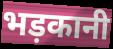
भड़कानी